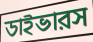
ডাইভারস